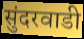
सुंदरवाडी